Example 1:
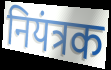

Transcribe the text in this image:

नियंत्रक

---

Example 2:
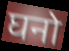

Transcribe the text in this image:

घनो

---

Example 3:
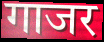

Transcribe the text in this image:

गाजर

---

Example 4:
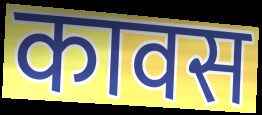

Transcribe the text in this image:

कावस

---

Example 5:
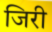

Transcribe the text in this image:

जिरी